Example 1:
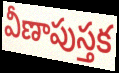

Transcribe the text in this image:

వీణాపుస్తక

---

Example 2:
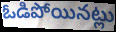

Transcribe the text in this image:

ఓడిపోయినట్లు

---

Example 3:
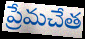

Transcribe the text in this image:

ప్రేమచేత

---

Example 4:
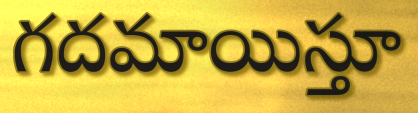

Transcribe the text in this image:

గదమాయిస్తూ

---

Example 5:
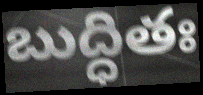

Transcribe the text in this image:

బుద్ధితః